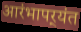
आरंभापर्यंत